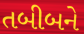
તબીબને